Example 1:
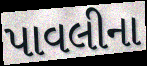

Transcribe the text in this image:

પાવલીના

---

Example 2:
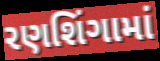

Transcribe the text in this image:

રણશિંગામાં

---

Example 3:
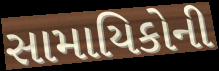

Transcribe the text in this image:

સામાયિકોની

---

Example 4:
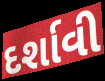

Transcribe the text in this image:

દર્શાવી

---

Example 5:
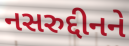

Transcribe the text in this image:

નસરુદ્દીનને